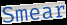
Smear